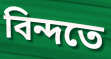
বিন্দতে